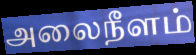
அலைநீளம்